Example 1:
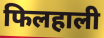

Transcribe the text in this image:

फिलहाली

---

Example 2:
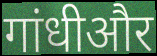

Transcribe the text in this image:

गांधीऔर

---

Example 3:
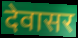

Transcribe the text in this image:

देवासर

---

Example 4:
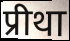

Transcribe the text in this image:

प्रीथा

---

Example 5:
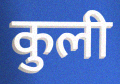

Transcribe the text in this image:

कुली